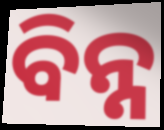
ବିନ୍ନ